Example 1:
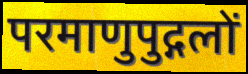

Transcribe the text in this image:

परमाणुपुद्गलों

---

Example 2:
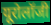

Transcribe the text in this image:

यूरोलॉजी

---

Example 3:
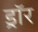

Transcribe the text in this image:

ड्रॉर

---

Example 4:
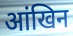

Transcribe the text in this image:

आंखिन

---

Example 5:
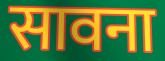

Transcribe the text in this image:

सावना